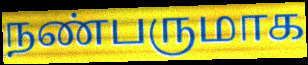
நண்பருமாக